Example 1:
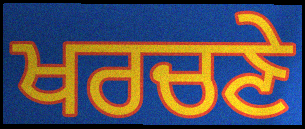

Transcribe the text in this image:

ਖਰਚਣੇ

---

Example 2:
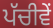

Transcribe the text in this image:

ਪੱਚੀਵੇਂ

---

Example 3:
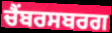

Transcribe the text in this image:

ਚੈਂਬਰਸਬਰਗ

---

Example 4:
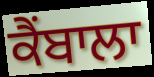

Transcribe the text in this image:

ਕੈਂਬਾਲਾ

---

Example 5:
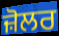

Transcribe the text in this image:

ਜ਼ੋਲਰ